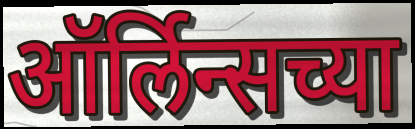
ऑर्लिन्सच्या